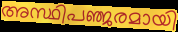
അസ്ഥിപഞ്ജരമായി